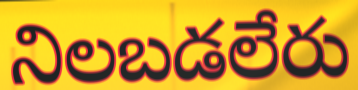
నిలబడలేరు